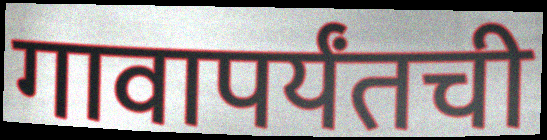
गावापर्यंतची